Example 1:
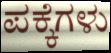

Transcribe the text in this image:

ಪಕ್ಕೆಗಳು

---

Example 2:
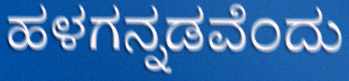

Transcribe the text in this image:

ಹಳಗನ್ನಡವೆಂದು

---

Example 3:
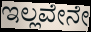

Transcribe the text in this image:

ಇಲ್ಲವೇನೇ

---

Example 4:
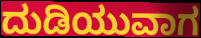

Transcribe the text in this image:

ದುಡಿಯುವಾಗ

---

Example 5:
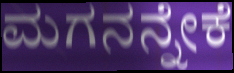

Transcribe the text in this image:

ಮಗನನ್ನೇಕೆ